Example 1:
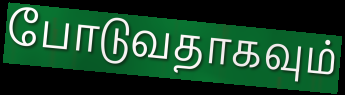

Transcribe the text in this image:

போடுவதாகவும்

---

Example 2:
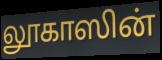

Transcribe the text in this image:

லூகாஸின்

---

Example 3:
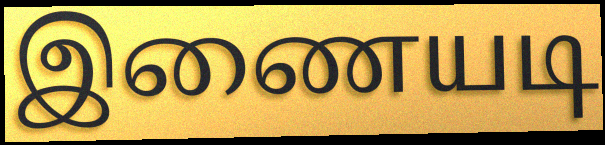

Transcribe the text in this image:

இணையடி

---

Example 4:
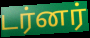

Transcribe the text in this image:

டர்னர்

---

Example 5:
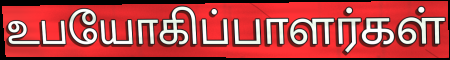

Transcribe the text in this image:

உபயோகிப்பாளர்கள்